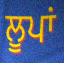
ਲੂਪਾਂ